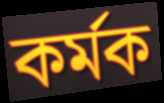
কৰ্মক